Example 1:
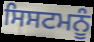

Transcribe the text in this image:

ਸਿਸਟਮਨੂੰ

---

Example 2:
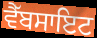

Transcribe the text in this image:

ਵੈੱਬਸਾਇਟ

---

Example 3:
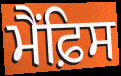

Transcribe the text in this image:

ਮੈਂਫ਼ਿਸ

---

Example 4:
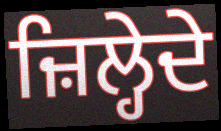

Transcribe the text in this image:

ਜ਼ਿਲ੍ਹੇਦੇ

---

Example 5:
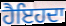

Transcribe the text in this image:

ਹੈਇਹਦਾ